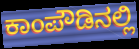
ಕಾಂಪೌಡಿನಲ್ಲಿ